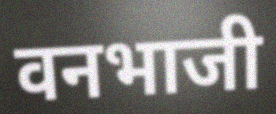
वनभाजी